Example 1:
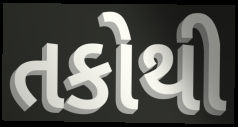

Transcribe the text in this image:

તકોથી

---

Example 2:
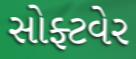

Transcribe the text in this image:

સોફ્ટવેર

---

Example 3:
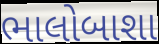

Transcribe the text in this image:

ભાલોબાશા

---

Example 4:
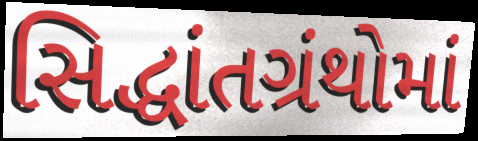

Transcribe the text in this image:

સિદ્ધાંતગ્રંથોમાં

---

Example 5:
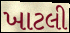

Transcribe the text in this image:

ખાટલી